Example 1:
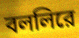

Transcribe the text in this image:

বললিরে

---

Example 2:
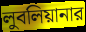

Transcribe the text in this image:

লুবলিয়ানার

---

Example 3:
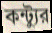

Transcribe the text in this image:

কন্ট্যুর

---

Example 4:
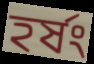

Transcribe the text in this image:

হর্ষং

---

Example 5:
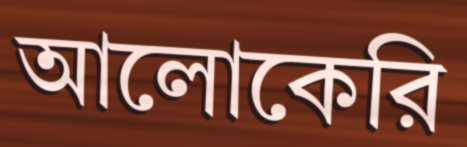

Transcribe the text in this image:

আলোকেরি